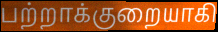
பற்றாக்குறையாகி